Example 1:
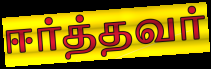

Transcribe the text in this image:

ஈர்த்தவர்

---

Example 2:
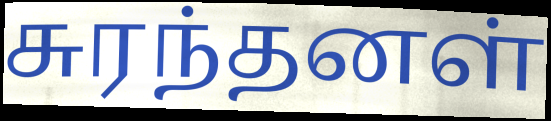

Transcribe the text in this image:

சுரந்தனள்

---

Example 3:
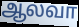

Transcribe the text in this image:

ஆலவா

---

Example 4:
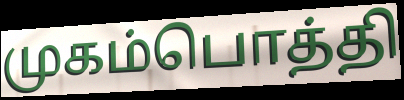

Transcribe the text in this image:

முகம்பொத்தி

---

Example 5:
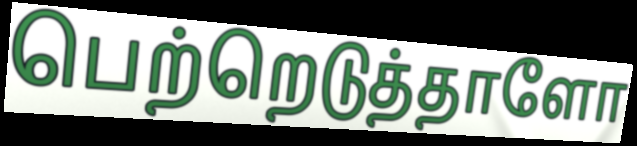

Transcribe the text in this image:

பெற்றெடுத்தாளோ